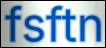
fsftn